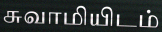
சுவாமியிடம்